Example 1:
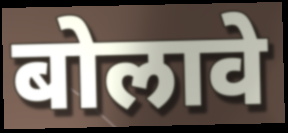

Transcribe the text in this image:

बोलावे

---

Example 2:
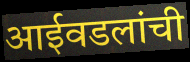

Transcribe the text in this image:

आईवडलांची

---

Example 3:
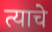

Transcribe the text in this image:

त्याचे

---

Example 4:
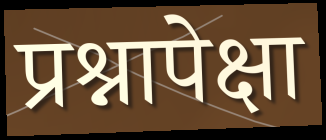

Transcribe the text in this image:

प्रश्नापेक्षा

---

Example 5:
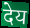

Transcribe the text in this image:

देय